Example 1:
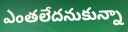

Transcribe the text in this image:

ఎంతలేదనుకున్నా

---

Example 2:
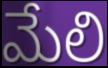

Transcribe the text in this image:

మేలి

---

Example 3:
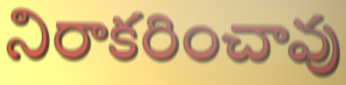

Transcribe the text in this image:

నిరాకరించావు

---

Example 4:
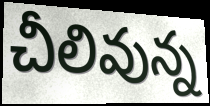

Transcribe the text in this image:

చీలివున్న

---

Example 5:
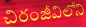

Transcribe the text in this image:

చిరంజీవిలోని